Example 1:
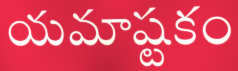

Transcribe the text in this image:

యమాష్టకం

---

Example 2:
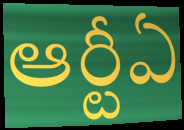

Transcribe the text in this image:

ఆర్టీఏ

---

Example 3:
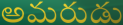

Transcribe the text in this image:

అమరుడు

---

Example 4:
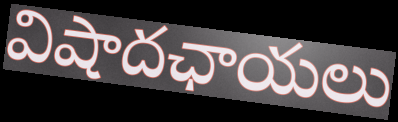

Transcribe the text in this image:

విషాదఛాయలు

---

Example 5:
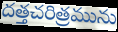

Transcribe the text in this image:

దత్తచరిత్రమును